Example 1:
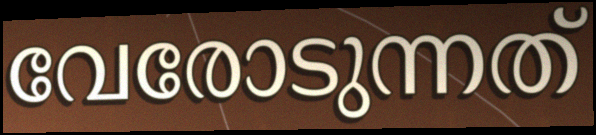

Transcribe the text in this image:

വേരോടുന്നത്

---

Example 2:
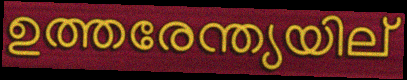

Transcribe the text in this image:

ഉത്തരേന്ത്യയില്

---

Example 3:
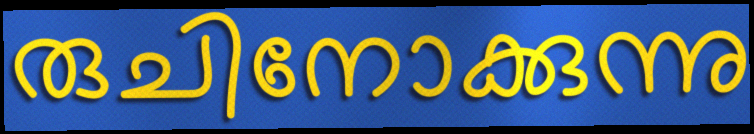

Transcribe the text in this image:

രുചിനോക്കുന്നു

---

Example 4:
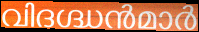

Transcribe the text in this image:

വിദഗ്ദ്ധൻമാർ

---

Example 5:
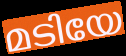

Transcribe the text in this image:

മടിയേ